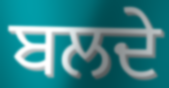
ਬਲਦੇ